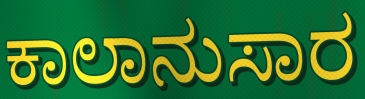
ಕಾಲಾನುಸಾರ